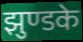
झुण्डके